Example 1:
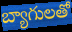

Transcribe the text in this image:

బ్యాగులతో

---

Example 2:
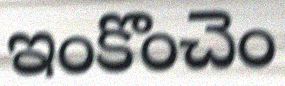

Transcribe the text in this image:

ఇంకొంచెం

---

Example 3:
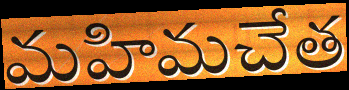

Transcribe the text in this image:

మహిమచేత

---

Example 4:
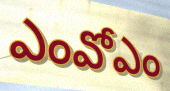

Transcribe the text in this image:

ఎంవోఎం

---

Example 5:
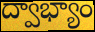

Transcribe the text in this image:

ద్వాభ్యాం